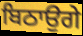
ਬਿਠਾਉਗੇ